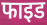
फाइड